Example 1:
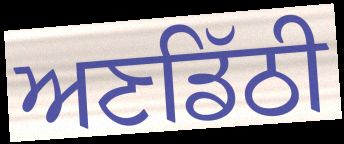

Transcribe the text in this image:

ਅਣਡਿੱਠੀ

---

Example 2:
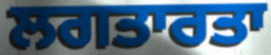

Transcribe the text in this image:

ਲਗਤਾਰਤਾ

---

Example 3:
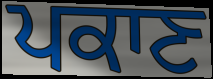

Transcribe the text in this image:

ਪਕਾਣ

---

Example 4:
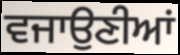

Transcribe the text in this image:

ਵਜਾਉਣੀਆਂ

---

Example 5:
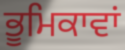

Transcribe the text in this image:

ਭੂਮਿਕਾਵਾਂ